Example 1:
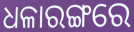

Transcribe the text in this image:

ଧଳାରଙ୍ଗରେ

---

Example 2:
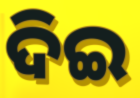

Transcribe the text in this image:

ଦିଇ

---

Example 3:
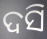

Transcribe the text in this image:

ଦସି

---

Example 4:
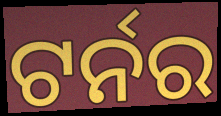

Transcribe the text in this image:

ଟର୍ନର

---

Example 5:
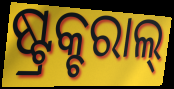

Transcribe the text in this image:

ଷ୍ଟ୍ରକ୍ଚରାଲ୍